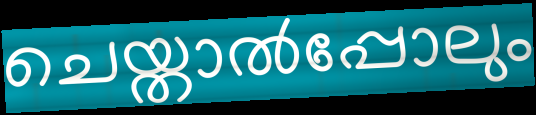
ചെയ്താൽപ്പോലും